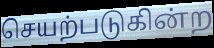
செயற்படுகின்ற